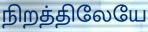
நிறத்திலேயே